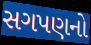
સગપણનો